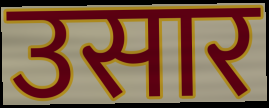
उसार